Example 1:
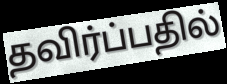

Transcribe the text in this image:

தவிர்ப்பதில்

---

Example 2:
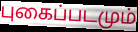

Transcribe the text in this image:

புகைப்படமும்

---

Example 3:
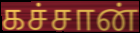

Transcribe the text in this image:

கச்சான்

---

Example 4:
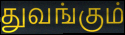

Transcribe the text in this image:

துவங்கும்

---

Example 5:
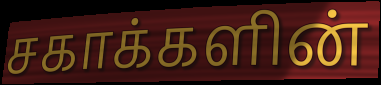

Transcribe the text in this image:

சகாக்களின்